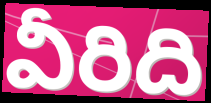
వీరిది